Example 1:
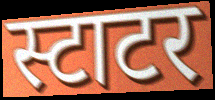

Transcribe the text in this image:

स्टाटर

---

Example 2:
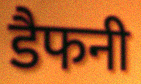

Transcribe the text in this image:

डैफनी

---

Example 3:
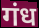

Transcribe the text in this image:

गंध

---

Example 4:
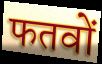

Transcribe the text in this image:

फतवों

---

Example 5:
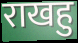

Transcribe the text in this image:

राखहु